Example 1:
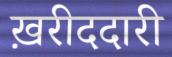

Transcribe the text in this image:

ख़रीददारी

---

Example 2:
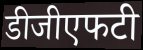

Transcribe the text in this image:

डीजीएफटी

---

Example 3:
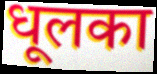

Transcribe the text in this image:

धूलका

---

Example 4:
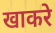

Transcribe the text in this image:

खाकरे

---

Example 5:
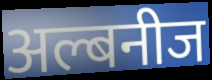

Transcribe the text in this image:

अल्‍बनीज